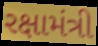
રક્ષામંત્રી